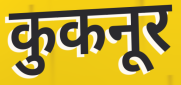
कुकनूर